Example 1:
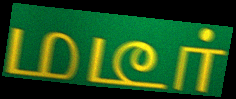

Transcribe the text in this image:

மடீர்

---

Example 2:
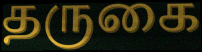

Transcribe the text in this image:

தருகை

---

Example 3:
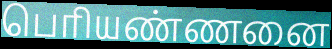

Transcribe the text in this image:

பெரியண்ணனை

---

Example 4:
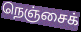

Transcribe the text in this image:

நெஞ்சைக்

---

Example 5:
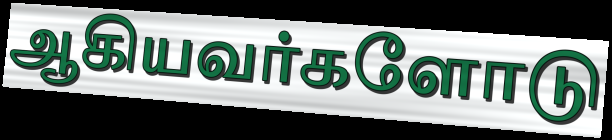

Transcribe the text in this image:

ஆகியவர்களோடு